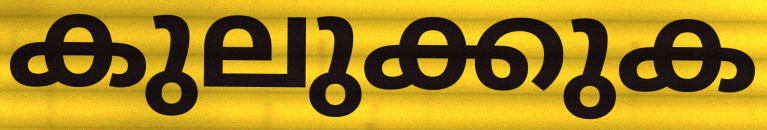
കുലുക്കുക